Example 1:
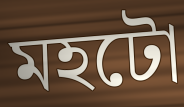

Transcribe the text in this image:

মহটো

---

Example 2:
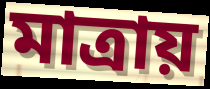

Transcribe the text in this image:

মাত্ৰায়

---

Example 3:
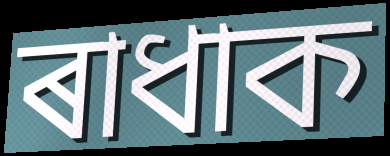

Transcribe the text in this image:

ৰাধাক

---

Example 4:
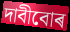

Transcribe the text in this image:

দাবীবোৰ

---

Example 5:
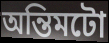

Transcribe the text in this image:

অন্তিমটো